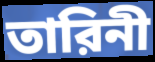
তারিনী